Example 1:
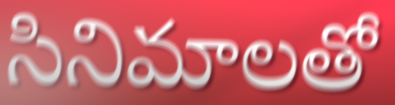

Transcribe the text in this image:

సినిమాలతో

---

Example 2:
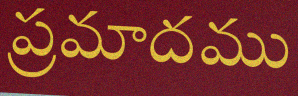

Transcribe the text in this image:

ప్రమాదము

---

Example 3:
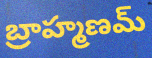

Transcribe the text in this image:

బ్రాహ్మణమ్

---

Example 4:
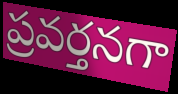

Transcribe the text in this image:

ప్రవర్తనగా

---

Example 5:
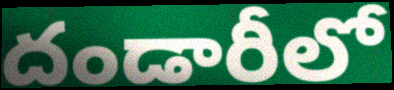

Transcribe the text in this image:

దండారీలో